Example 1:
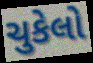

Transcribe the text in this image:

ચુકેલો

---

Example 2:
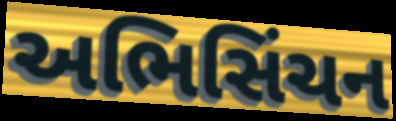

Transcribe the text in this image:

અભિસિંચન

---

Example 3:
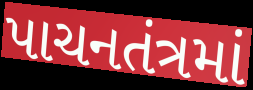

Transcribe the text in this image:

પાચનતંત્રમાં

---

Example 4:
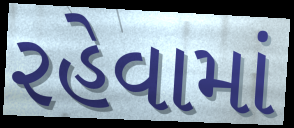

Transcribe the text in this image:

રહેવામાં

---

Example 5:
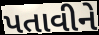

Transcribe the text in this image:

પતાવીને